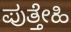
ಪುತ್ತೇಹಿ